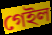
গেইল